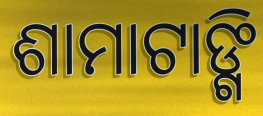
ଶାମାଟାଙ୍ଗି